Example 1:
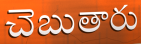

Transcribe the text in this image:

చెబుతారు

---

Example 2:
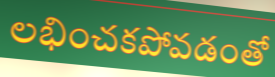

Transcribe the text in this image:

లభించకపోవడంతో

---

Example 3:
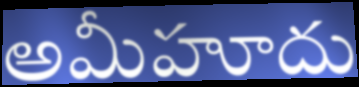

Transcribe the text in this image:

అమీహూదు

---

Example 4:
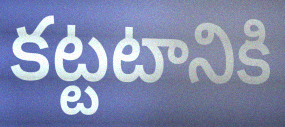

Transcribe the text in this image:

కట్టటానికి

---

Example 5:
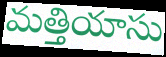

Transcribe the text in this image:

మత్తియాసు